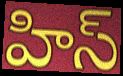
హిస్